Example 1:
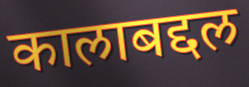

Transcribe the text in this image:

कालाबद्दल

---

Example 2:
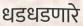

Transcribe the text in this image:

धडधडणारे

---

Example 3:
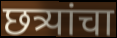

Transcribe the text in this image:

छत्र्यांचा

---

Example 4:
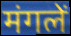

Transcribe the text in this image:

मंगलें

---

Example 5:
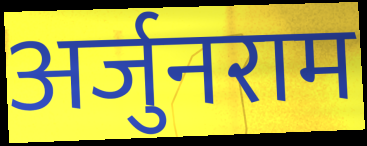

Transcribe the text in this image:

अर्जुनराम